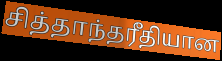
சித்தாந்தரீதியான